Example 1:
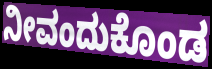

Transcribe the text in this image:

ನೀವಂದುಕೊಂಡ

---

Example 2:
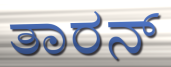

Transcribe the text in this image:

ತಾರನ್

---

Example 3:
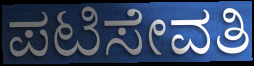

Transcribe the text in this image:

ಪಟಿಸೇವತಿ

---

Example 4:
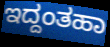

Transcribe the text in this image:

ಇದ್ದಂತಹಾ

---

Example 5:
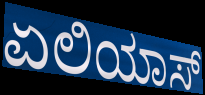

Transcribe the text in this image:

ಏಲಿಯಾಸ್